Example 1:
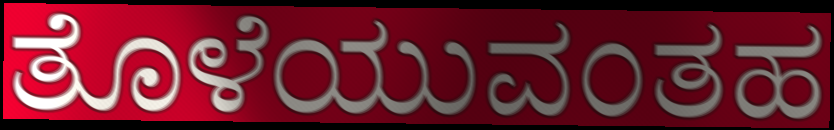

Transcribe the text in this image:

ತೊಳೆಯುವಂತಹ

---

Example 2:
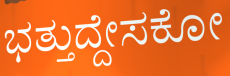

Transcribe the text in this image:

ಭತ್ತುದ್ದೇಸಕೋ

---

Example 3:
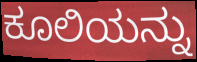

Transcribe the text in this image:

ಕೂಲಿಯನ್ನು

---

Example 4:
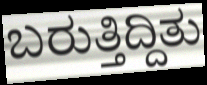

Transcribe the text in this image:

ಬರುತ್ತಿದ್ದಿತು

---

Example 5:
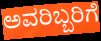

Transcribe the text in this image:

ಅವರಿಬ್ಬರಿಗೆ